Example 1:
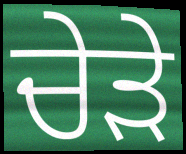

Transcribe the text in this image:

ਚੇੜੇ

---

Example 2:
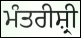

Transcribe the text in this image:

ਮੰਤਰੀਸ਼੍ਰੀ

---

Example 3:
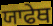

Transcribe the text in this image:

ਯਾਫੇਥ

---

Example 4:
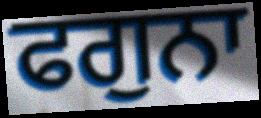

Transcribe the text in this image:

ਫਗੁਨਾ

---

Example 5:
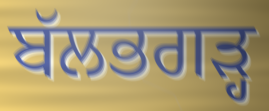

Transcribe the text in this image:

ਬੱਲਭਗੜ੍ਹ